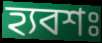
হ্যবশঃ